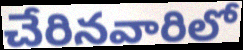
చేరినవారిలో